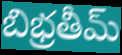
బిభ్రతీమ్